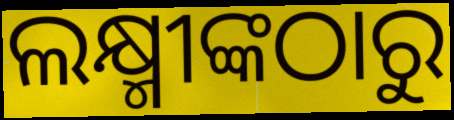
ଲକ୍ଷ୍ମୀଙ୍କଠାରୁ